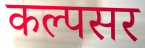
कल्पसर